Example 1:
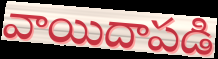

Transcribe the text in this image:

వాయిదాపడి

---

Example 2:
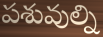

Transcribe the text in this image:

పశువుల్ని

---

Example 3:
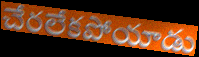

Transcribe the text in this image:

చేరలేకపోయాడు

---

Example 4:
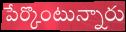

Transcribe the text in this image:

పేర్కొంటున్నారు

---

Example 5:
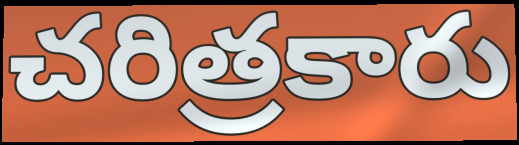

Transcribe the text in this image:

చరిత్రకారు